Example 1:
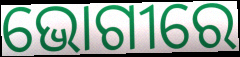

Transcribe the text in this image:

ଭୋଗୀରେ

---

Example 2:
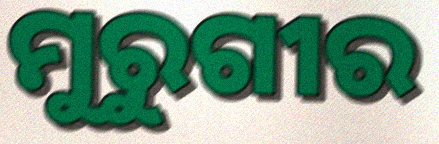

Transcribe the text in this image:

ମୁରୁଗୀର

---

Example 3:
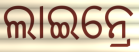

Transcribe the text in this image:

ଲାଇନ୍ରେ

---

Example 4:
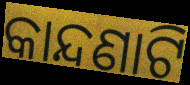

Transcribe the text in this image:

କାନ୍ଦଣାଟି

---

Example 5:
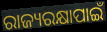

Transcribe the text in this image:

ରାଜ୍ୟରକ୍ଷାପାଇଁ